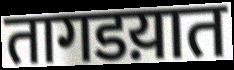
तागडय़ात